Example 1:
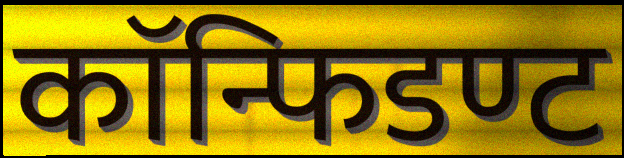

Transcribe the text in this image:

कॉन्फिडण्ट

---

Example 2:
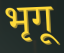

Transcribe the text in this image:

भृगू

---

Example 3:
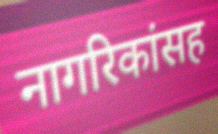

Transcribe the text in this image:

नागरिकांसह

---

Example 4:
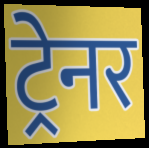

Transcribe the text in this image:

ट्रेनर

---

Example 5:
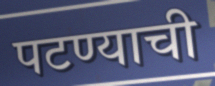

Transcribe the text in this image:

पटण्याची